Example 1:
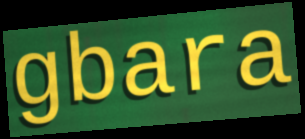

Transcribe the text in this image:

gbara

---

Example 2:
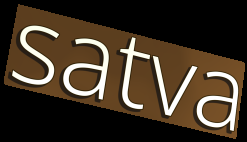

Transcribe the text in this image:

satva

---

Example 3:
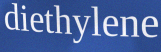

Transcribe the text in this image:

diethylene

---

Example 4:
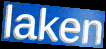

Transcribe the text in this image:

laken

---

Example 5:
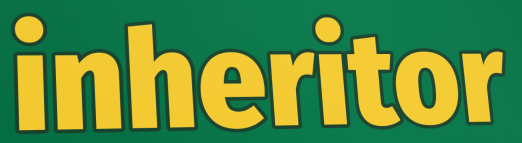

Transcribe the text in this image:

inheritor